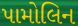
પામોલિન